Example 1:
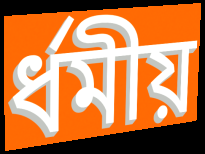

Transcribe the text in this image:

ৰ্ধমীয়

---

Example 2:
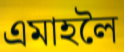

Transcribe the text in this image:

এমাহলৈ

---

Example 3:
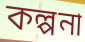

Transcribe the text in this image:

কল্পনা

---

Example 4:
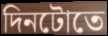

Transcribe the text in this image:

দিনটোতে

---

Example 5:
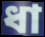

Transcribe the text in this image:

ধা